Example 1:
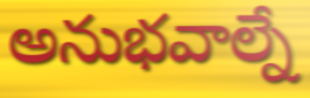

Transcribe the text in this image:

అనుభవాల్నే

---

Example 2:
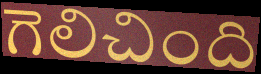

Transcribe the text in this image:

గెలిచింది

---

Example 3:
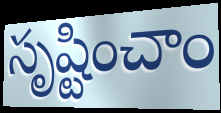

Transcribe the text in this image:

సృష్టించాం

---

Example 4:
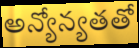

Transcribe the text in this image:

అన్యోన్యతతో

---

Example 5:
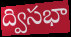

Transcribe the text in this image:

ద్విసభా